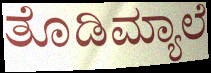
ತೊಡಿಮ್ಯಾಲೆ